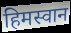
हिमस्वान